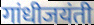
गांधीजयंती